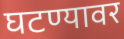
घटण्यावर